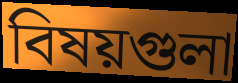
বিষয়গুলা